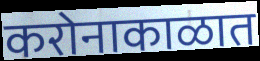
करोनाकाळात